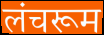
लंचरूम